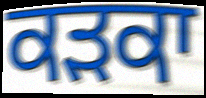
ਕੜਕਾ